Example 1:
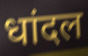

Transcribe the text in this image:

धांदल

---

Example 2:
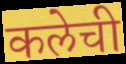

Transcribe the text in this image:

कलेची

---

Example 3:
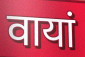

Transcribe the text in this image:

वायां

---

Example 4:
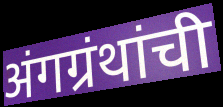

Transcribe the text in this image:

अंगग्रंथांची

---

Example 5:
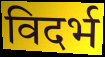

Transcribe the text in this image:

विदर्भ